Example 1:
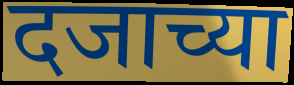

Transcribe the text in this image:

दजाच्या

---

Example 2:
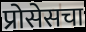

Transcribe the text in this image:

प्रोसेसचा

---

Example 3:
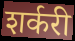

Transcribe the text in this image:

शर्करी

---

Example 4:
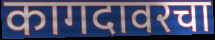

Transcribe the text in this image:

कागदावरचा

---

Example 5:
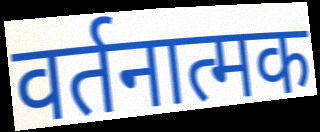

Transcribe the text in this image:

वर्तनात्मक